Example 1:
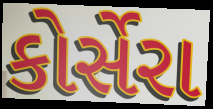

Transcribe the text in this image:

કોર્સેરા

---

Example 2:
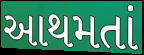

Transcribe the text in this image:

આથમતાં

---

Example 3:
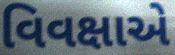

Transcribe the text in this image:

વિવક્ષાએ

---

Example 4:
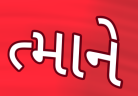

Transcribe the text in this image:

ત્માને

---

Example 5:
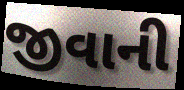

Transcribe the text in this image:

જીવાની